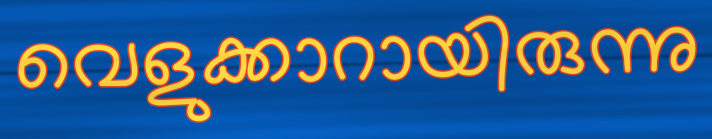
വെളുക്കാറായിരുന്നു